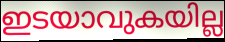
ഇടയാവുകയില്ല